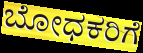
ಬೋಧಕರಿಗೆ